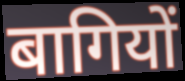
बागियों